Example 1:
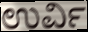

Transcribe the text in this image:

ಉರ್ವಿ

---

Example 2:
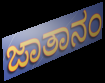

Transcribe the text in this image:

ಜಾತಾನಂ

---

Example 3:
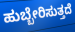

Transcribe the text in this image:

ಹುಬ್ಬೇರಿಸುತ್ತದೆ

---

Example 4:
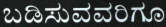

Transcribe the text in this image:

ಬಡಿಸುವವರಿಗೂ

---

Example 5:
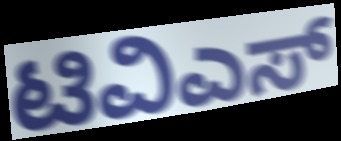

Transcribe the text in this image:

ಟಿವಿಎಸ್